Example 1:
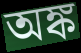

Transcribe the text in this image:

অঙ্ক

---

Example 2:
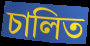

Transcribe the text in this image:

চালিত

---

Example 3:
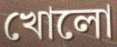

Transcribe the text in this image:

খোলো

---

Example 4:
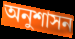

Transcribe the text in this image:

অনুশাসন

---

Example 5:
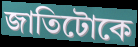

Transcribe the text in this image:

জাতিটোকে